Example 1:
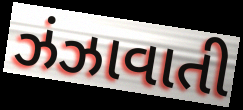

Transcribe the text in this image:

ઝંઝાવાતી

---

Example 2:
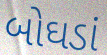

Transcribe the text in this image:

બોઘડાં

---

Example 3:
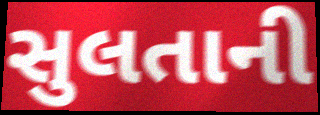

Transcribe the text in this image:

સુલતાની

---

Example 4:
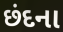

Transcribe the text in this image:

છંદના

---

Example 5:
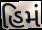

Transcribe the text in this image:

હિમં